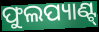
ଫୁଲପ୍ୟାଣ୍ଟ୍